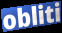
obliti